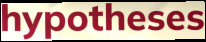
hypotheses